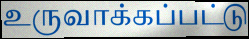
உருவாக்கப்பட்டு